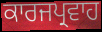
ਕਾਰਜਪ੍ਰਵਾਹ